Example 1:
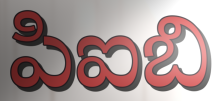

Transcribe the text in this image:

పిఐబి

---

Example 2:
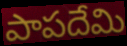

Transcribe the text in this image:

పాపదేమి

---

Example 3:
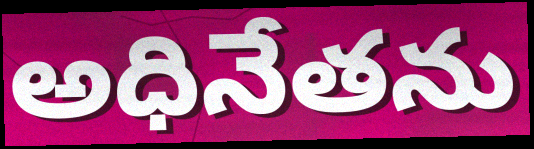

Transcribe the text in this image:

అధినేతను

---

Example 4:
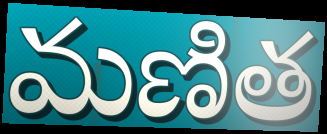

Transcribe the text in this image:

మణిత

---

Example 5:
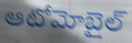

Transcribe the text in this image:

ఆటోమోబైల్